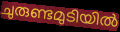
ചുരുണ്ടമുടിയിൽ